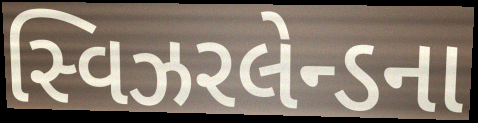
સ્વિઝરલેન્ડના